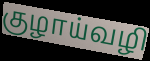
குழாய்வழி